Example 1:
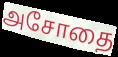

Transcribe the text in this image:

அசோதை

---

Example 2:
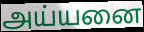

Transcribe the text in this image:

அய்யனை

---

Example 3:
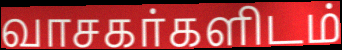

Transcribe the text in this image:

வாசகர்களிடம்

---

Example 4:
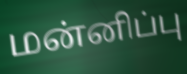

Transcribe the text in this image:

மன்னிப்பு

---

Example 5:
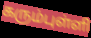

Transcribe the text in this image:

கரும்புள்ளி